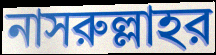
নাসরুল্লাহর